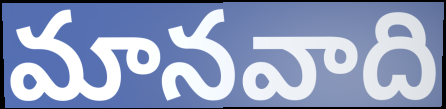
మానవాది